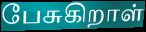
பேசுகிறாள்